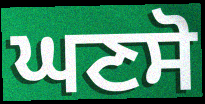
ਘਣਸੋ